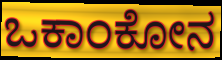
ಒಕಾಂಕೋನ